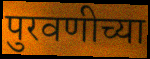
पुरवणीच्या